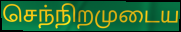
செந்நிறமுடைய